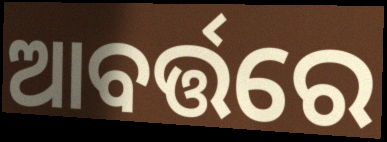
ଆବର୍ତ୍ତରେ